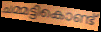
ചമ്മട്ടികൊണ്ട്